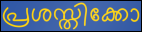
പ്രശസ്തിക്കോ